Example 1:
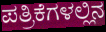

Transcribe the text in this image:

ಪತ್ರಿಕೆಗಳಲ್ಲಿನ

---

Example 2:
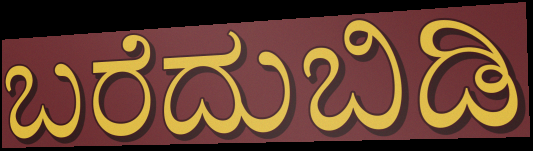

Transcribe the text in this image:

ಬರೆದುಬಿಡಿ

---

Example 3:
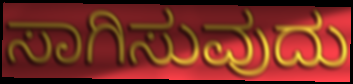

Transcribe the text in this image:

ಸಾಗಿಸುವುದು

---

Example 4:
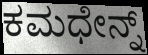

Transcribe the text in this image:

ಕಮಧೇನ್ನ್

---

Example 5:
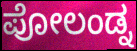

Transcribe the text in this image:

ಪೋಲಂಡ್ನ